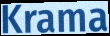
Krama